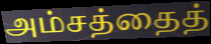
அம்சத்தைத்